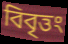
বিবৃত্তং